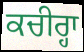
ਕਚੀਰ੍ਹਾ